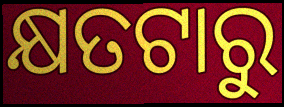
କ୍ଷତଟାରୁ